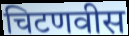
चिटणवीस